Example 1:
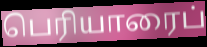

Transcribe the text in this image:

பெரியாரைப்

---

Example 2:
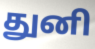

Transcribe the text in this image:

துனி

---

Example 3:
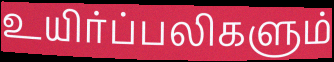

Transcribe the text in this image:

உயிர்ப்பலிகளும்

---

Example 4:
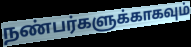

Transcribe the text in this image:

நண்பர்களுக்காகவும்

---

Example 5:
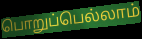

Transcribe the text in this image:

பொறுப்பெல்லாம்